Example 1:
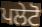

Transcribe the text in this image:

ਪਲੇਟੋ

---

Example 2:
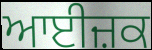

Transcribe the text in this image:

ਆਈਜ਼ਕ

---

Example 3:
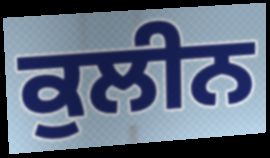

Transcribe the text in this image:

ਕੁਲੀਨ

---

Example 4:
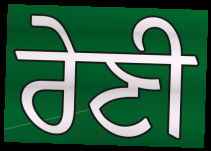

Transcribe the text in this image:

ਰੇਣੀ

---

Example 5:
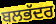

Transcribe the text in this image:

ਬਲਭੱਦਰ